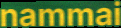
nammai